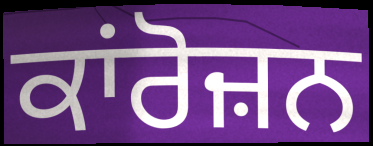
ਕਾਂਰੋਜ਼ਨ